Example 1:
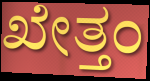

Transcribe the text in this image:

ಖೇತ್ತಂ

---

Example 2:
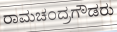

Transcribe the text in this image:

ರಾಮಚಂದ್ರಗೌಡರು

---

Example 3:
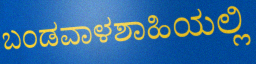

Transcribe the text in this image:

ಬಂಡವಾಳಶಾಹಿಯಲ್ಲಿ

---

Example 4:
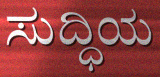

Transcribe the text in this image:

ಸುದ್ಧಿಯ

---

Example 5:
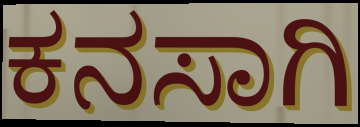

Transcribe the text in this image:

ಕನಸಾಗಿ